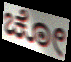
ಚೋ